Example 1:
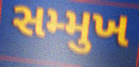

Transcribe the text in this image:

સમ્મુખ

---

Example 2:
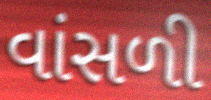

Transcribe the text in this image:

વાંસળી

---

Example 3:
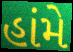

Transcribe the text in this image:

હાંમે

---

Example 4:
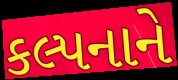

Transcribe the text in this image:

કલ્પનાને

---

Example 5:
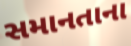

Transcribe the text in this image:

સમાનતાના